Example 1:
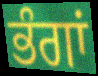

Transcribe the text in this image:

ਭੰਗਾਂ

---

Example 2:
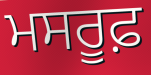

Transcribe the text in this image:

ਮਸਰੂਫ਼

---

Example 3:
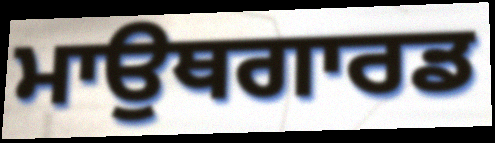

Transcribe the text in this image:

ਮਾਉਥਗਾਰਡ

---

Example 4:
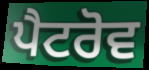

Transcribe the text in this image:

ਪੈਟਰੋਵ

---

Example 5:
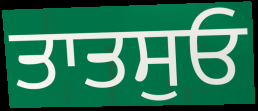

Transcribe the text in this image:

ਤਾਤਸੁਓ